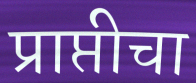
प्राप्तीचा